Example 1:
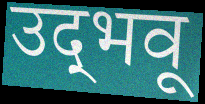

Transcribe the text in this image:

उद्‌भवू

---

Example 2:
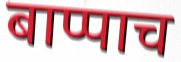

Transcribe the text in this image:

बाप्पाच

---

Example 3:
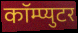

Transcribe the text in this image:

कॉम्प्युटर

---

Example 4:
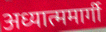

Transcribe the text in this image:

अध्यात्ममार्गी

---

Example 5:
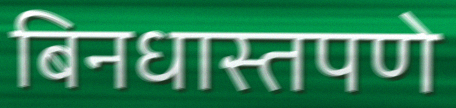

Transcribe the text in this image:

बिनधास्तपणे